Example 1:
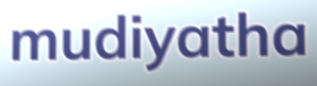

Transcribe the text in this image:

mudiyatha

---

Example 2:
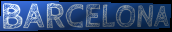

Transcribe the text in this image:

BARCELONA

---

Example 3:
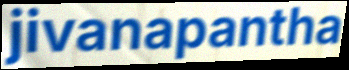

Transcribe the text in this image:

jivanapantha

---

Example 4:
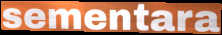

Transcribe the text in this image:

sementara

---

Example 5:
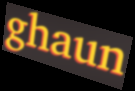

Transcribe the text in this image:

ghaun